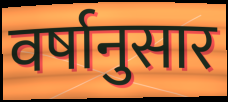
वर्षानुसार